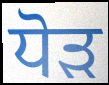
ਧੋੜ